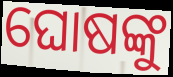
ଘୋଷଙ୍କୁ